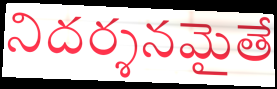
నిదర్శనమైతే